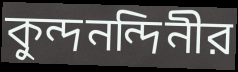
কুন্দনন্দিনীর